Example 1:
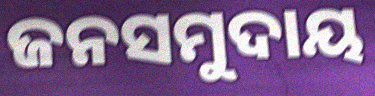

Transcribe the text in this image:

ଜନସମୁଦାୟ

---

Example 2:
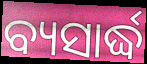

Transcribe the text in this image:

ବ୍ୟସାର୍ଦ୍ଧ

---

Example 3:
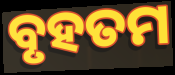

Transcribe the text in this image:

ବୃହତମ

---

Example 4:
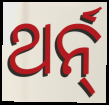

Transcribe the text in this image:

ଥର୍ନ୍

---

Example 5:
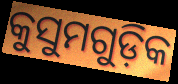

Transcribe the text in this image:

କୁସୁମଗୁଡ଼ିକ